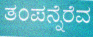
ತಂಪನ್ನೆರೆವ